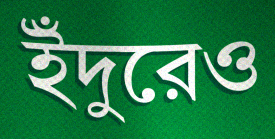
ইঁদুরেও